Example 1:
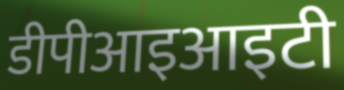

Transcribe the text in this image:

डीपीआइआइटी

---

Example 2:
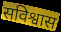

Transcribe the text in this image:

सविश्वास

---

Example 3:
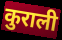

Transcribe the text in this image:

कुराली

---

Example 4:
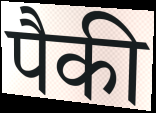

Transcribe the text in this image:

पैकी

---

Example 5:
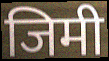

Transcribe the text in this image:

जिमी